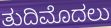
ತುದಿಮೊದಲು